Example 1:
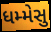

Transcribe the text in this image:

ધમ્મેસુ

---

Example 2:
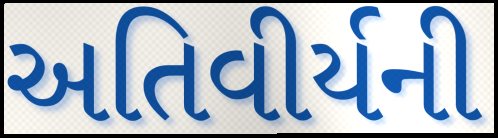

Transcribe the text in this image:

અતિવીર્યની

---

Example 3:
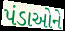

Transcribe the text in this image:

પંડાઓને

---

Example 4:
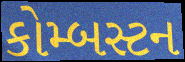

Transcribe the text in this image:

કોમ્બસ્ટન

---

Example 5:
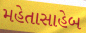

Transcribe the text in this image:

મહેતાસાહેબ